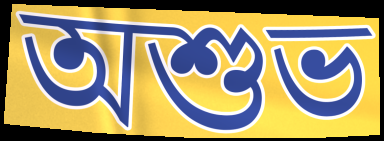
অশুভ